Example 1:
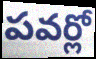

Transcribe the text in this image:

పవర్లో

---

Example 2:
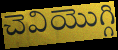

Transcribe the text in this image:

చెవియొగ్గి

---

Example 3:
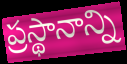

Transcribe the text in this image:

ప్రస్థానాన్ని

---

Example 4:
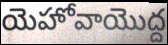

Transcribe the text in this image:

యెహోవాయొద్ద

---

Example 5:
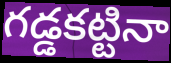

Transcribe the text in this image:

గడ్డకట్టినా